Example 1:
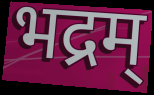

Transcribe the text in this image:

भद्रम्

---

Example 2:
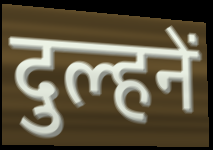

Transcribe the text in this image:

दुल्हनें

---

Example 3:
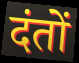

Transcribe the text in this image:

दंतों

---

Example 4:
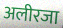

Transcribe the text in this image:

अलीरजा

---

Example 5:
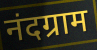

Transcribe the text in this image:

नंदग्राम